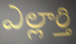
ఎల్లార్తి